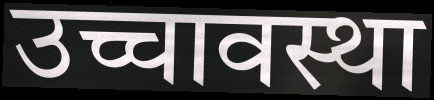
उच्चावस्था